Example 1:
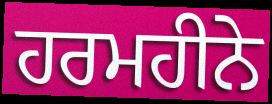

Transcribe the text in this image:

ਹਰਮਹੀਨੇ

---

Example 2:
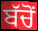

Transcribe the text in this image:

ਬੱਚੋਂ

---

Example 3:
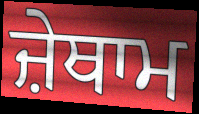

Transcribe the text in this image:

ਜ਼ੇਥਾਮ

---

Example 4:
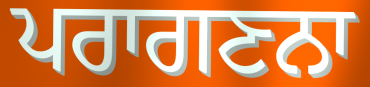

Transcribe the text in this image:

ਪਰਾਗਣਨਾ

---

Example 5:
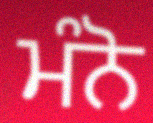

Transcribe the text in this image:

ਮੰਨੋ